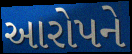
આરોપને